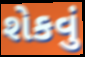
શેકવું